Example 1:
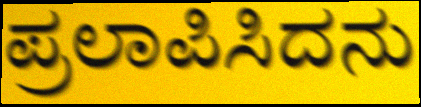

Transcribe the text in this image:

ಪ್ರಲಾಪಿಸಿದನು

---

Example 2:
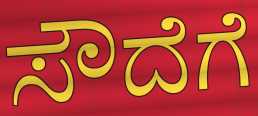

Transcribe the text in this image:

ಸೌದೆಗೆ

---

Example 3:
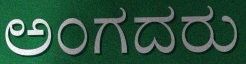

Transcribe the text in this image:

ಅಂಗದರು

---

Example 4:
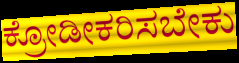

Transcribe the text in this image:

ಕ್ರೋಡೀಕರಿಸಬೇಕು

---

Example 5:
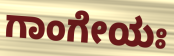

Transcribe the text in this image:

ಗಾಂಗೇಯಃ